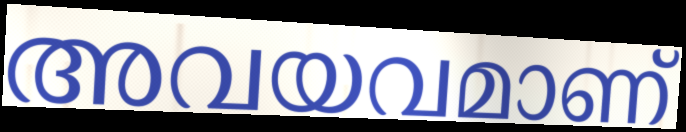
അവയവമാണ്